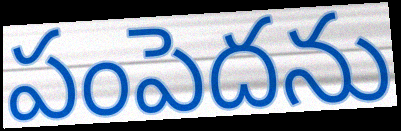
పంపెదను